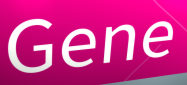
Gene